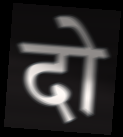
दो